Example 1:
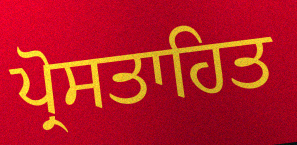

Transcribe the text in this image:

ਪ੍ਰੋਸਤਾਹਿਤ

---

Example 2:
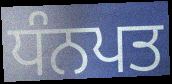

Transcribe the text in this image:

ਧੰਨਪਤ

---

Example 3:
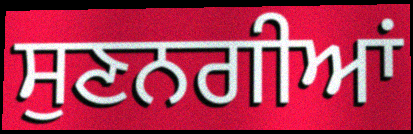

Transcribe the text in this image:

ਸੁਣਨਗੀਆਂ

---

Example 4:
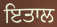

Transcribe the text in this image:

ਇਤਾਲ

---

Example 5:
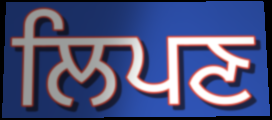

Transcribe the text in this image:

ਲਿਪਣ